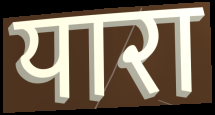
यारा